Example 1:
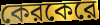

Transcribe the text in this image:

কেরকেরে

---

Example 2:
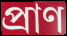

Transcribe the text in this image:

প্রাণ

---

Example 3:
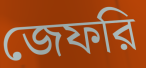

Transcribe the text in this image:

জেফরি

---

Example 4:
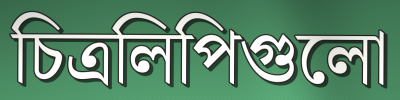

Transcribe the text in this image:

চিত্রলিপিগুলো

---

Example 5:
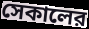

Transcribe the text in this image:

সেকালের